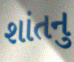
શાંતનુ